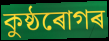
কুষ্ঠৰোগৰ